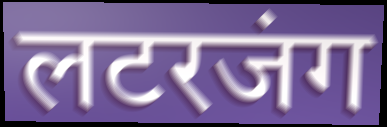
लटरजंग